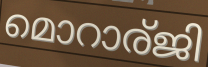
മൊറാര്ജി